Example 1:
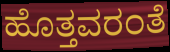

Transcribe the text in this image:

ಹೊತ್ತವರಂತೆ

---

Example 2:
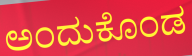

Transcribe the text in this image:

ಅಂದುಕೊಂಡ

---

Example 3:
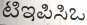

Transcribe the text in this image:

ಟಿಇಪಿಸಿಒ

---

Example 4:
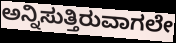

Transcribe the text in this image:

ಅನ್ನಿಸುತ್ತಿರುವಾಗಲೇ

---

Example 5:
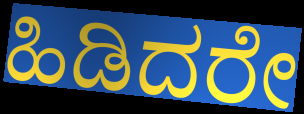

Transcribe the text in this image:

ಹಿಡಿದರೇ